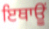
ਇਥਾਊਂ